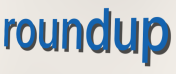
roundup